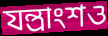
যন্ত্রাংশও